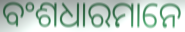
ବଂଶଧାରମାନେ